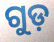
ଗୁଡ଼